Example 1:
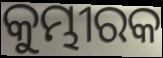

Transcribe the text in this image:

କୁମ୍ଭୀରକ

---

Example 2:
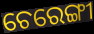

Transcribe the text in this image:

ଚେରେଙ୍ଗୀ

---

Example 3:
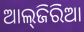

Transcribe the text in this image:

ଆଲ୍‌ଜିରିଆ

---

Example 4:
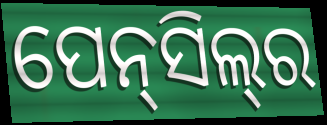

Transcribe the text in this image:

ପେନ୍‍ସିଲ୍‍ର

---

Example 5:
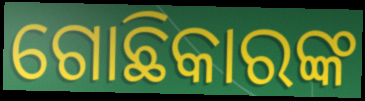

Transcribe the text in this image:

ଗୋଛିକାରଙ୍କ